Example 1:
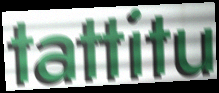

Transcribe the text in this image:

tattitu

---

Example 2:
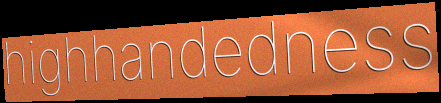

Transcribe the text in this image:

highhandedness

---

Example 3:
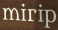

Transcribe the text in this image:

mirip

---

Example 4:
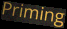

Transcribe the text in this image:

Priming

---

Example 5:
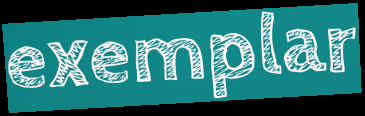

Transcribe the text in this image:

exemplar